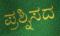
ಪ್ರಶ್ನಿಸದ